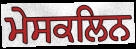
ਮੇਸਕਲਿਨ